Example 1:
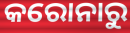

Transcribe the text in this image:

କରୋନାରୁ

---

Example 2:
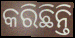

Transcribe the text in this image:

କରିଛିନ୍ତି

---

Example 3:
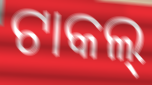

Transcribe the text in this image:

ଟାକଲ୍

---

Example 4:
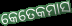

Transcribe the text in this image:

କେତେକମାସ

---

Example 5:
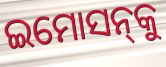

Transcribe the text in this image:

ଇମୋସନ୍‌କୁ